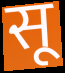
सू